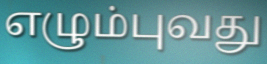
எழும்புவது